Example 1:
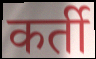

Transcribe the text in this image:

कर्ती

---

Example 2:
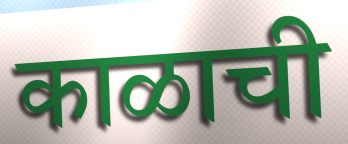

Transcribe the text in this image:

काळाची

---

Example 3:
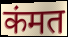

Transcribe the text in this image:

कंमत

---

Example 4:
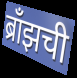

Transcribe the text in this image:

ब्राँझची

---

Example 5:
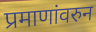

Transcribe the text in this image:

प्रमाणांवरुन